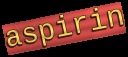
aspirin